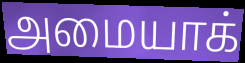
அமையாக்